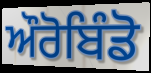
ਔਰੋਬਿੰਡੋ